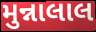
મુન્નાલાલ